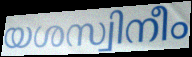
യശസ്വിനീം